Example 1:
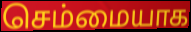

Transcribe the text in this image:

செம்மையாக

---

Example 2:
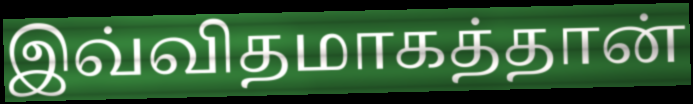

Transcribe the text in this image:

இவ்விதமாகத்தான்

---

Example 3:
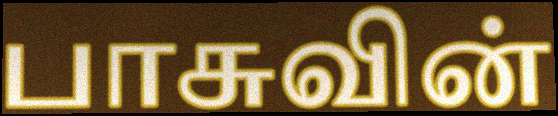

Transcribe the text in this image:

பாசுவின்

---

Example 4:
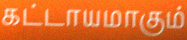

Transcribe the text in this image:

கட்டாயமாகும்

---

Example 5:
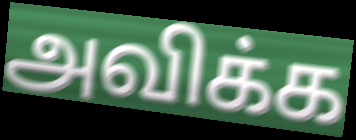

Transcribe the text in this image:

அவிக்க